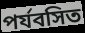
পৰ্যবসিত